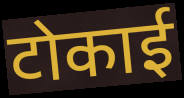
टोकाई